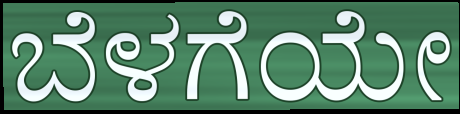
ಬೆಳಗೆಯೇ